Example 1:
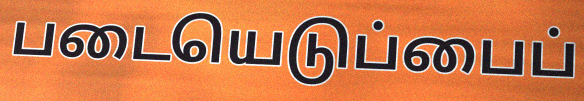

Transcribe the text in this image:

படையெடுப்பைப்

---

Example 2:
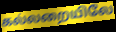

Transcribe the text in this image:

கல்லறையிலே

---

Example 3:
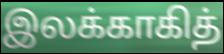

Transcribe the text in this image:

இலக்காகித்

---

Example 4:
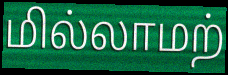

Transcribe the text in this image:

மில்லாமற்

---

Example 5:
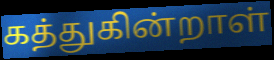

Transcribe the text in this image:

கத்துகின்றாள்